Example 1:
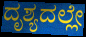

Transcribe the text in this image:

ದೃಶ್ಯದಲ್ಲೇ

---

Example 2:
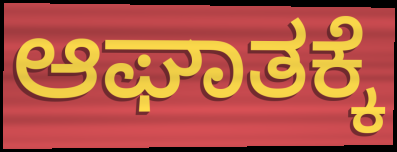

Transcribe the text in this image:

ಆಘಾತಕ್ಕೆ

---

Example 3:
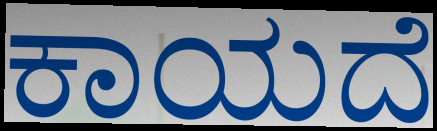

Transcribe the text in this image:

ಕಾಯದೆ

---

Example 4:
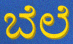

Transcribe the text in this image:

ಬೆಲೆ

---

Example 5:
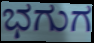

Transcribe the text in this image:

ಭಗುಗ